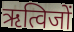
ऋत्विजों